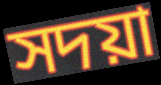
সদয়া